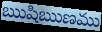
ఋషిఋణము